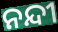
ନନ୍ଦୀ